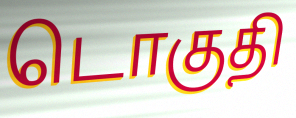
டொகுதி